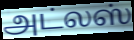
அட்லஸ்